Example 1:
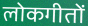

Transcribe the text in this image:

लोकगीतों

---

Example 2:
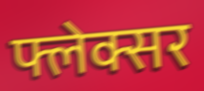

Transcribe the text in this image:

फ्लेक्सर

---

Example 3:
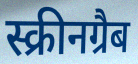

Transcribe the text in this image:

स्क्रीनग्रैब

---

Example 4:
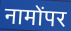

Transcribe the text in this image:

नामोंपर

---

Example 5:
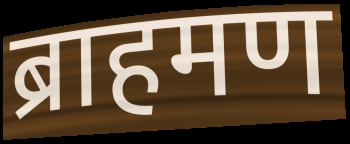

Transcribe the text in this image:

ब्राहमण